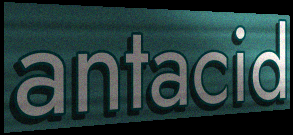
antacid